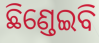
ଛିଣ୍ଡେଇବି